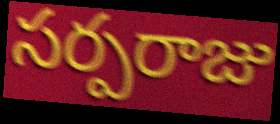
సర్పరాజు